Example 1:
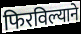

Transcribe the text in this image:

फिरविल्याने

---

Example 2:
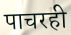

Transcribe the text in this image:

पाचरही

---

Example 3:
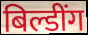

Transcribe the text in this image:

बिल्डींग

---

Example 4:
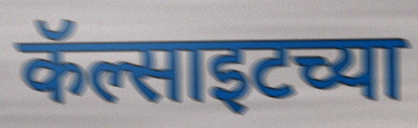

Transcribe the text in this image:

कॅल्साइटच्या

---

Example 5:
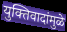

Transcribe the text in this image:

युक्तिवादांमुळे